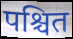
पश्चित